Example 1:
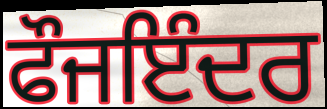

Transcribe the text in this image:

ਫੌਜਇੰਦਰ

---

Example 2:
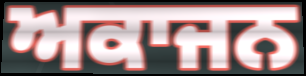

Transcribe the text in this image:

ਅਕਾਜਨ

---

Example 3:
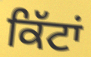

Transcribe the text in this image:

ਕਿੱਟਾਂ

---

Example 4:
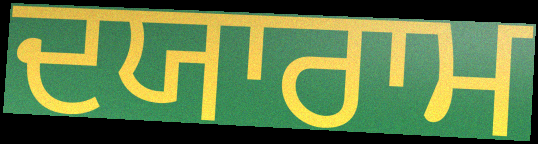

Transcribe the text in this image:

ਦਯਾਰਾਮ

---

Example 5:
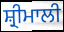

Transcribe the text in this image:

ਸ਼੍ਰੀਮਾਲੀ